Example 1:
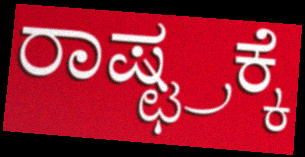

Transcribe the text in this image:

ರಾಷ್ಟ್ರಕ್ಕೆ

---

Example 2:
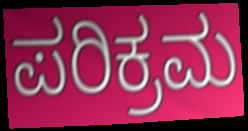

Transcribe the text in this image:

ಪರಿಕ್ರಮ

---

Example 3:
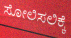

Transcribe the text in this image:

ಸೋಲಿಸಲಿಕ್ಕೆ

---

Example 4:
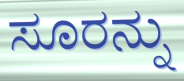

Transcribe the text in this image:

ಸೂರನ್ನು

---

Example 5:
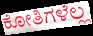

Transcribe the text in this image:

ಕೋತಿಗಳೆಲ್ಲ